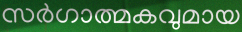
സർഗാത്മകവുമായ